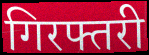
गिरफ्तरी